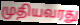
முதியவரது